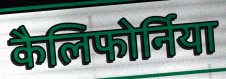
कैलिफोर्निया